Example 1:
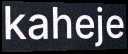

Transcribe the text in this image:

kaheje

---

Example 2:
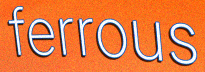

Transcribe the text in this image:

ferrous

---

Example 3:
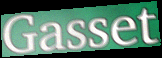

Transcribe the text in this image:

Gasset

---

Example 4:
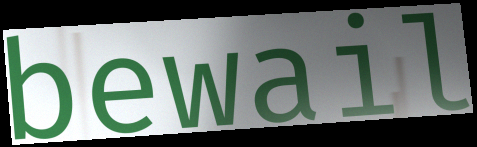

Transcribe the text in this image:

bewail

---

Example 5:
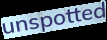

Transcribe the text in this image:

unspotted